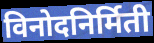
विनोदनिर्मिती